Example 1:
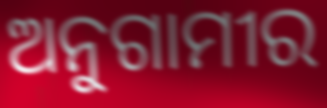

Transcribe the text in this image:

ଅନୁଗାମୀର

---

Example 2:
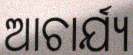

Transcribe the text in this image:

ଆଚାର୍ଯ୍ୟ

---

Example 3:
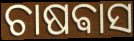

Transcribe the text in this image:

ଚାଷଵାସ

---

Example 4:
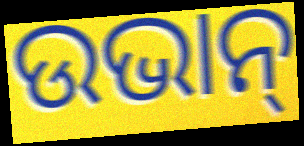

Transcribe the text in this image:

ଉଭାନ୍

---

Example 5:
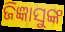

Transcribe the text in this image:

ଜିଜ୍ଞାସୁଙ୍କ